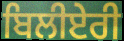
ਬਿਲੀਏਰੀ